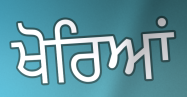
ਖੋਰਿਆਂ